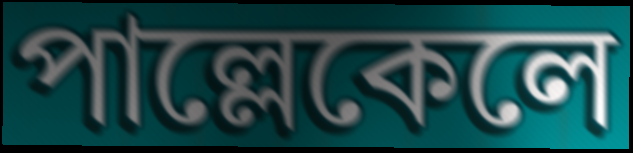
পাল্লেকেলে